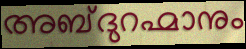
അബ്ദുറഹ്മാനും